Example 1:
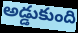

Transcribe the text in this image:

అడ్డుకుంది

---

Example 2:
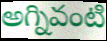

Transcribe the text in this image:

అగ్నివంటి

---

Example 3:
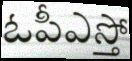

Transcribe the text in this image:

ఓపీఎస్తో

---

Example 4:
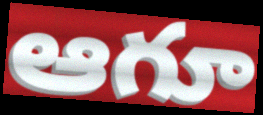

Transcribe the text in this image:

ఆగూ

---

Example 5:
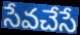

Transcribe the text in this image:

సేవచేసే